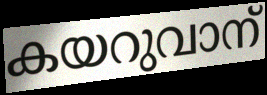
കയറുവാന്